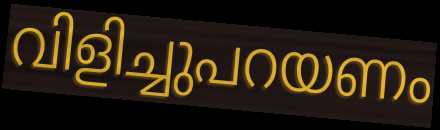
വിളിച്ചുപറയണം